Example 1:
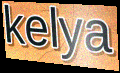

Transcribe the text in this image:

kelya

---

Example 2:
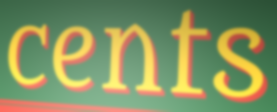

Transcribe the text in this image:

cents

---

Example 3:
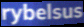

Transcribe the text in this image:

rybelsus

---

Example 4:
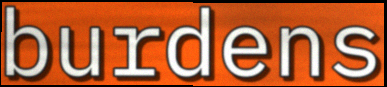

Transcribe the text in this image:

burdens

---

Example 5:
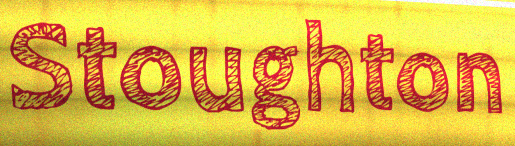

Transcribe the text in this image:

Stoughton